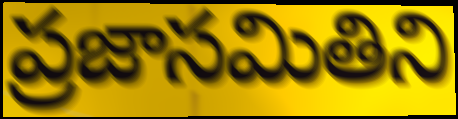
ప్రజాసమితిని